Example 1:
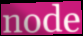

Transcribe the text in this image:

node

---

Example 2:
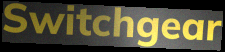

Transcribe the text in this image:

Switchgear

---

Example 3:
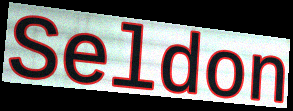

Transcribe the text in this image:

Seldon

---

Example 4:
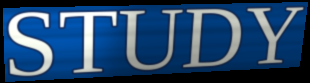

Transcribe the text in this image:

STUDY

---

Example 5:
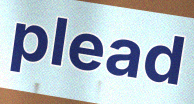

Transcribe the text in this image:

plead